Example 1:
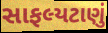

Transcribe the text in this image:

સાફલ્યટાણું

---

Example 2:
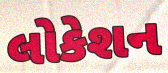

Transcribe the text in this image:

લોકેશન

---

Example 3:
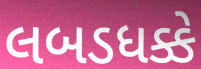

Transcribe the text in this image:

લબડધક્કે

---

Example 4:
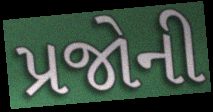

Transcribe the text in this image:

પ્રજોની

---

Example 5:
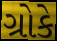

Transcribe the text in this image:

ગ્રોકે